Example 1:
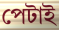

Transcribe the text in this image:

পেটাই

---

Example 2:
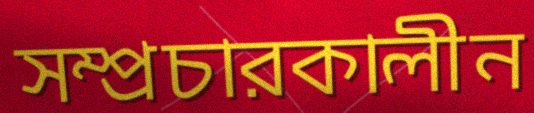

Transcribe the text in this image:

সম্প্রচারকালীন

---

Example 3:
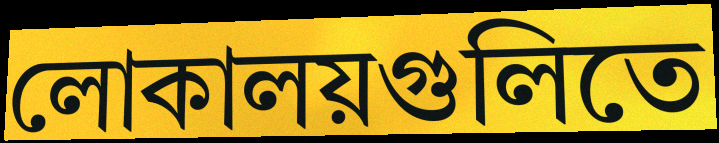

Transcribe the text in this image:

লোকালয়গুলিতে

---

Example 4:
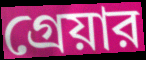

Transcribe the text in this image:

গ্রেয়ার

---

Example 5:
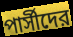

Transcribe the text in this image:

পার্সীদের